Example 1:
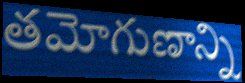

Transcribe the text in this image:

తమోగుణాన్ని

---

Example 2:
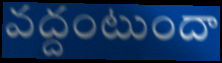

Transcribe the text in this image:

వద్దంటుందా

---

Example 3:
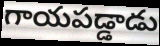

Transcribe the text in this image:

గాయపడ్డాడు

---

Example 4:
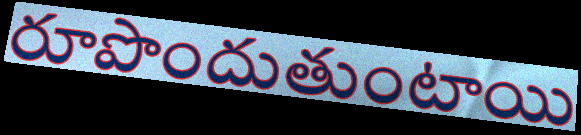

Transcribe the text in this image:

రూపొందుతుంటాయి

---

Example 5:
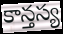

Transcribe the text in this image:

కాన్తస్య